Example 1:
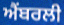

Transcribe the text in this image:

ਐਂਬਰਲੀ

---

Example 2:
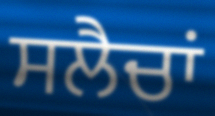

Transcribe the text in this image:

ਸਲੈਚਾਂ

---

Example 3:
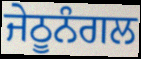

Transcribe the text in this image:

ਜੇਠੂਨੰਗਲ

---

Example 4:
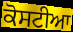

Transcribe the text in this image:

ਕੋਸਟੀਆ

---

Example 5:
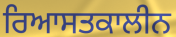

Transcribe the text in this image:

ਰਿਆਸਤਕਾਲੀਨ